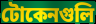
টোকেনগুলি